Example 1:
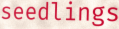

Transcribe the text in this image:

seedlings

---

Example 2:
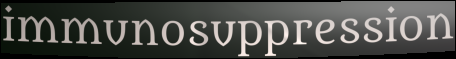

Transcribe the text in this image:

immunosuppression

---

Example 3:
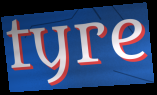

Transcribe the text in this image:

tyre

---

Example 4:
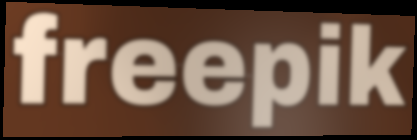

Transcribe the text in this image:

freepik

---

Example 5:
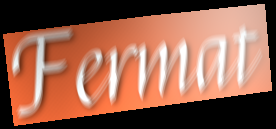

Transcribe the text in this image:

Fermat